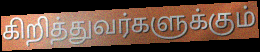
கிறித்துவர்களுக்கும்